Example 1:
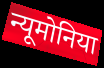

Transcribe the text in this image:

न्यूमोनिया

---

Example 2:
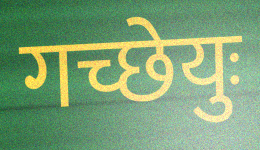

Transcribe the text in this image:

गच्छेयुः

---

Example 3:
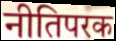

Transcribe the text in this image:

नीतिपरक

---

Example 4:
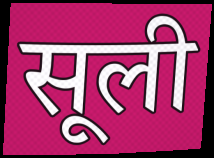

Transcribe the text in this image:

सूली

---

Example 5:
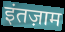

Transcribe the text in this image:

इंतज़ाम